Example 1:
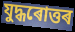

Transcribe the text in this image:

যুদ্ধৰোত্তৰ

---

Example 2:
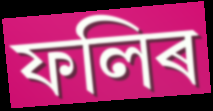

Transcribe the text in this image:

ফলিৰ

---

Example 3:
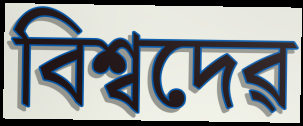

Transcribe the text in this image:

বিশ্বদেৱ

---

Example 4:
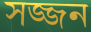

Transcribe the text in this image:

সজ্জন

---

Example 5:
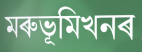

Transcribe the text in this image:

মৰুভূমিখনৰ